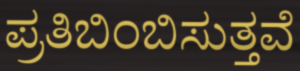
ಪ್ರತಿಬಿಂಬಿಸುತ್ತವೆ